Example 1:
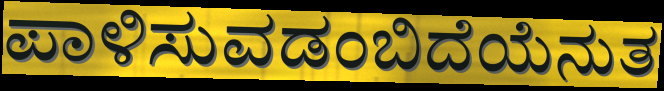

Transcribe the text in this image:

ಪಾಳಿಸುವಡಂಬಿದೆಯೆನುತ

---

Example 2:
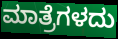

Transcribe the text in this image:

ಮಾತ್ರೆಗಳದು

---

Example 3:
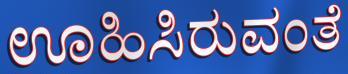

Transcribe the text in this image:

ಊಹಿಸಿರುವಂತೆ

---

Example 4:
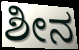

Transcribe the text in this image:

ಶೀನ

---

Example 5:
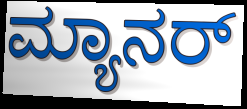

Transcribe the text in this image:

ಮ್ಯಾನರ್